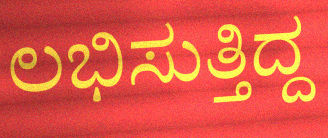
ಲಭಿಸುತ್ತಿದ್ದ